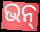
ଭନ୍